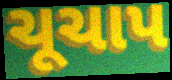
ચૂચાપ